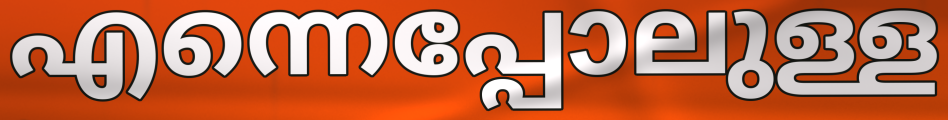
എന്നെപ്പോലുള്ള